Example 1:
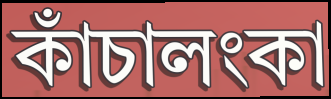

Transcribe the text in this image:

কাঁচালংকা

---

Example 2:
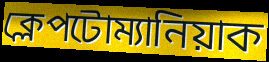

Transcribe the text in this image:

ক্লেপটোম্যানিয়াক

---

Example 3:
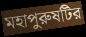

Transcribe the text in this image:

মহাপুরুষটির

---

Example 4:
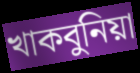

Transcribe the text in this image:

খাকবুনিয়া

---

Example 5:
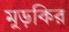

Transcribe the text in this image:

মুড়কির